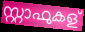
സ്റ്റാഫുകള്